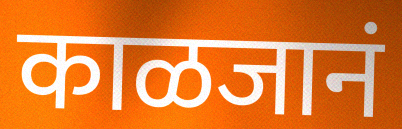
काळजानं